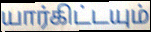
யார்கிட்டயும்